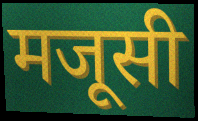
मजूसी